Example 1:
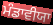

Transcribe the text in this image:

ਮੰਡਾਵੀਯਾ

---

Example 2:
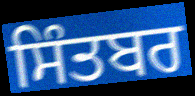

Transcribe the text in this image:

ਸਿੰਤਬਰ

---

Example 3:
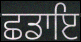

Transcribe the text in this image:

ਛਡਾਇ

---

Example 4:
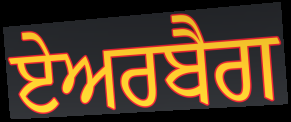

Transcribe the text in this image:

ਏਅਰਬੈਗ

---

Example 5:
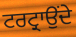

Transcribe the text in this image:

ਟਰਟ੍ਰਾਉਂਦੇ